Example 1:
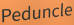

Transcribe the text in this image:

Peduncle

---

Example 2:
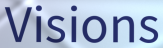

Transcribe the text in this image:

Visions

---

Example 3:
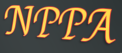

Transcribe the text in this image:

NPPA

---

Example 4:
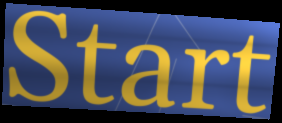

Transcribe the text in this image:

Start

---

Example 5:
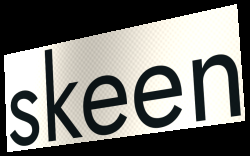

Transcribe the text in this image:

skeen